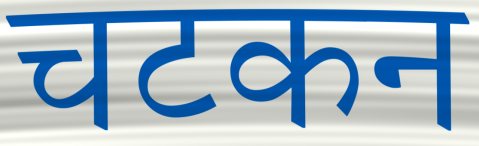
चटकन